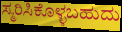
ಸ್ಮರಿಸಿಕೊಳ್ಳಬಹುದು